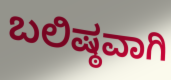
ಬಲಿಷ್ಠವಾಗಿ